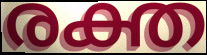
രക്ത